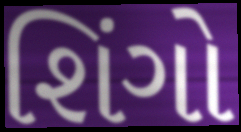
શિંગો